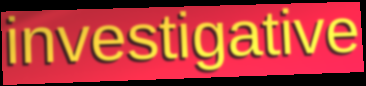
investigative